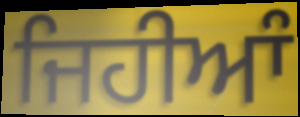
ਜਿਹੀਆੰ